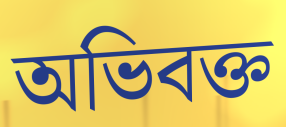
অভিবক্ত